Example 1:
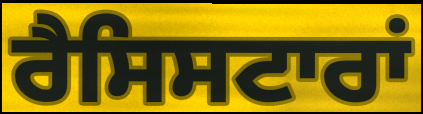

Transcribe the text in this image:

ਰੈਸਿਸਟਾਰਾਂ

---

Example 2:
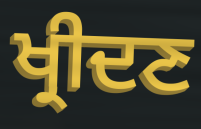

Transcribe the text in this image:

ਖ੍ਰੀਦਣ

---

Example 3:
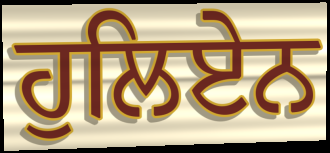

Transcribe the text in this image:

ਹੁਲਿਏਨ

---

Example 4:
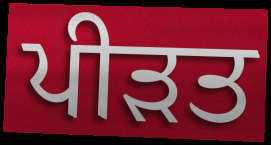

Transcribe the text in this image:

ਪੀਡ਼ਤ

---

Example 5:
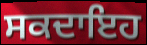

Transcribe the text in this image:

ਸਕਦਾਇਹ